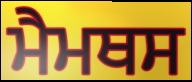
ਮੈਮਥਸ